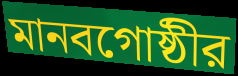
মানবগোষ্ঠীর